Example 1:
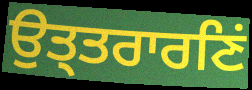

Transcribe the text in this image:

ਉਤ੍ਤਰਾਰਣਿਂ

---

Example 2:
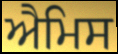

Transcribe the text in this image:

ਐਮਿਸ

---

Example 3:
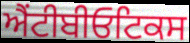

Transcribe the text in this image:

ਐਂਟੀਬੀਓਟਿਕਸ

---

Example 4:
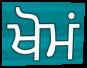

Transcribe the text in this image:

ਖੋਮਂ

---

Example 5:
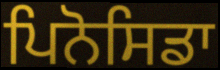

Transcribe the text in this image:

ਪਿਨੋਸਿਡਾ